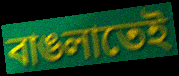
বাঙলাতেই